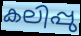
കലിപ്പു